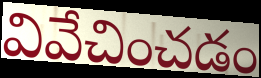
వివేచించడం